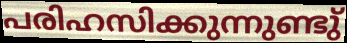
പരിഹസിക്കുന്നുണ്ടു്